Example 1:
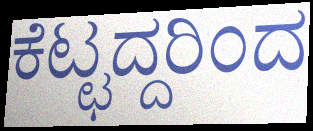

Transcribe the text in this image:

ಕೆಟ್ಟದ್ದರಿಂದ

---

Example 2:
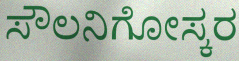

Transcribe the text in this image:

ಸೌಲನಿಗೋಸ್ಕರ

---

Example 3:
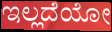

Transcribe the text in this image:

ಇಲ್ಲದೆಯೋ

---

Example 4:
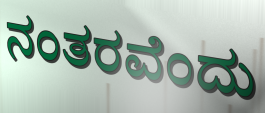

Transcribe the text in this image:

ನಂತರವೆಂದು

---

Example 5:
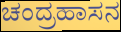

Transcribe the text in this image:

ಚಂದ್ರಹಾಸನ